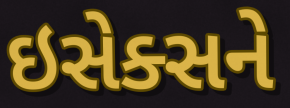
ઇસેક્સને